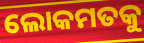
ଲୋକମତକୁ